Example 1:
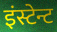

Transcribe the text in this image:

इंस्टेन्ट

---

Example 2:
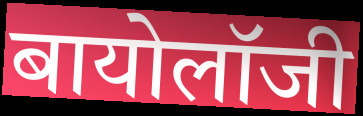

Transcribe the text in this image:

बायोलॉजी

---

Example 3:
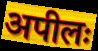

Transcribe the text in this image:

अपीलः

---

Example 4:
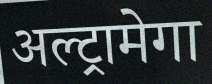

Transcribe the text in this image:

अल्ट्रामेगा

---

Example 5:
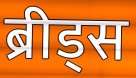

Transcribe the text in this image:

ब्रीड्स